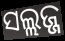
ସଲ୍ଲଜ୍ଜ